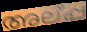
അല്പ്പ